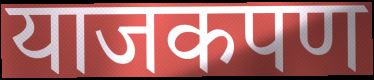
याजकपण